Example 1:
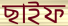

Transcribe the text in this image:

ছাইফ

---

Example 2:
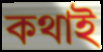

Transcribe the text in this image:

কথাই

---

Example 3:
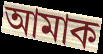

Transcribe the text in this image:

আমাক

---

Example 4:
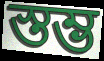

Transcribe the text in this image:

স্তম্ভ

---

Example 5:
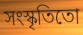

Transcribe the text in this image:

সংস্কৃতিতো